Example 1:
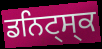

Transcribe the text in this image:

ਡਨਿਟ੍ਸ੍ਕ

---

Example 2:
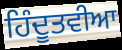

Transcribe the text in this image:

ਹਿੰਦੂਤਵੀਆ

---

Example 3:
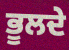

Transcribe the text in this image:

ਭੂਲਦੇ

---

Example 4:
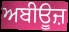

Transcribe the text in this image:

ਅਬੀਊਜ਼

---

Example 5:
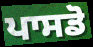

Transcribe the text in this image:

ਪਾਸਡੋ